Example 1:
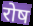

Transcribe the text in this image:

रोष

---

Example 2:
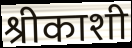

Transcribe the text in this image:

श्रीकाशी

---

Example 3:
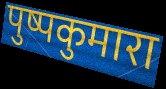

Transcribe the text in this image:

पुष्पकुमारा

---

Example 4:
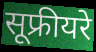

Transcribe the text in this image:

सूफ्रीयरे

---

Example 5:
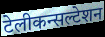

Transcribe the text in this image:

टेलीकन्सल्टेशन